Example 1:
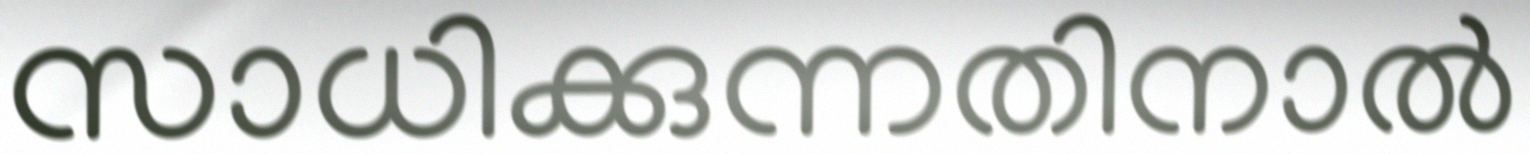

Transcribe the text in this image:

സാധിക്കുന്നതിനാൽ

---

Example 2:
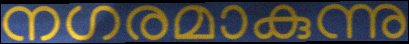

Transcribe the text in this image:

നഗരമാകുന്നു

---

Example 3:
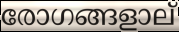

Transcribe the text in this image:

രോഗങ്ങളാല്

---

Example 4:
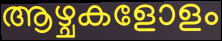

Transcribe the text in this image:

ആഴ്ചകളോളം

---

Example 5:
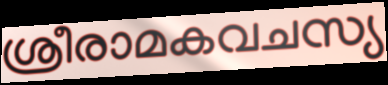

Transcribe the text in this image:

ശ്രീരാമകവചസ്യ